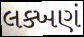
લક્ખણં